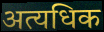
अत्‍यधिक